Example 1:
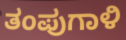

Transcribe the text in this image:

ತಂಪುಗಾಳಿ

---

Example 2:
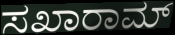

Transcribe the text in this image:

ಸಖಾರಾಮ್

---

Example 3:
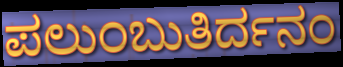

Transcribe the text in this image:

ಪಲುಂಬುತಿರ್ದನಂ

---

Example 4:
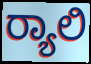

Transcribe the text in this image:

ರ‍್ಯಾಲಿ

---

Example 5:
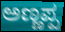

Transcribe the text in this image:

ಅಣ್ಣಪ್ಪ